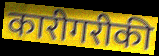
कारीगरीकी